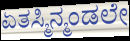
ಏತಸ್ಮಿನ್ಮಂಡಲೇ